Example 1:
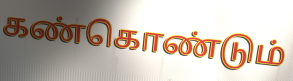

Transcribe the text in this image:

கண்கொண்டும்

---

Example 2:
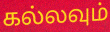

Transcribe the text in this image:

கல்லவும்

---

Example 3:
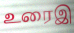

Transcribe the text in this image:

உரைஇ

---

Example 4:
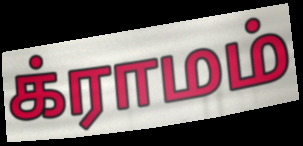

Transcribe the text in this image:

க்ராமம்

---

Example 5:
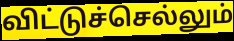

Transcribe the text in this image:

விட்டுச்செல்லும்